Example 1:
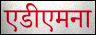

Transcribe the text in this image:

एडीएमना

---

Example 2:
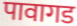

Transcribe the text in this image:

पावागड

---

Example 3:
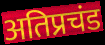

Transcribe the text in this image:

अतिप्रचंड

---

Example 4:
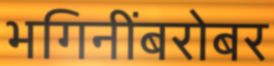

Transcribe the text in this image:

भगिनींबरोबर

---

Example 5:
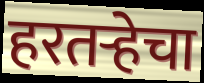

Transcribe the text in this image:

हरतऱ्हेचा